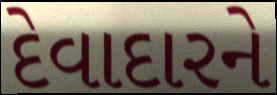
દેવાદારને